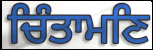
ਚਿੰਤਾਮਣਿ